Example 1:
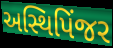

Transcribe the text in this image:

અસ્થિપિંજર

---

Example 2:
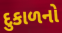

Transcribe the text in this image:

દુકાળનો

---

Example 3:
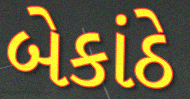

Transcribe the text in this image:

બેકાંઠે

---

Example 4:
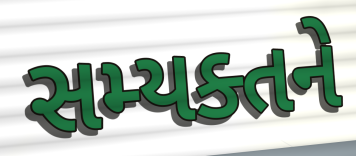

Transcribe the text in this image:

સમ્યક્તને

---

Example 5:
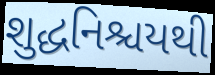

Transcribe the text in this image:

શુદ્ધનિશ્ચયથી